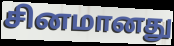
சினமானது